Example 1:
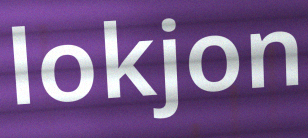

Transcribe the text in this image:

lokjon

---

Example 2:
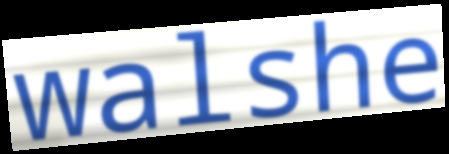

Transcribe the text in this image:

walshe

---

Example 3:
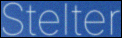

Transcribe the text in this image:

Stelter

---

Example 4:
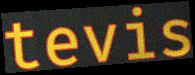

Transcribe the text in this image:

tevis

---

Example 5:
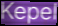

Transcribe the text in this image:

Kepel